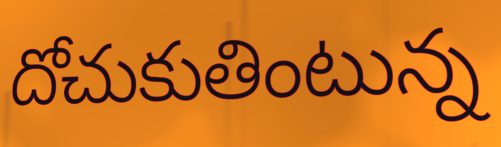
దోచుకుతింటున్న